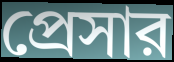
প্রেসার